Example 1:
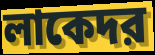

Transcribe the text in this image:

লাকেদর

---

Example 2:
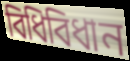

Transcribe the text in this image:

বিধিবিধান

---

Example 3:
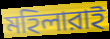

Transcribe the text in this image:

মহিলারাই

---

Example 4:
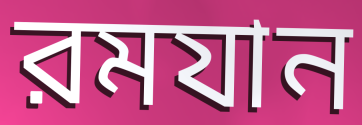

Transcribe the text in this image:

রমযান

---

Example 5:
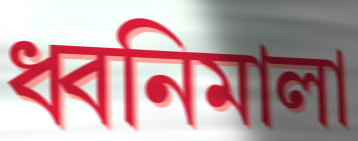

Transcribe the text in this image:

ধ্বনিমালা